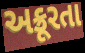
અક્રૂરતા